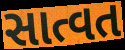
સાત્વત